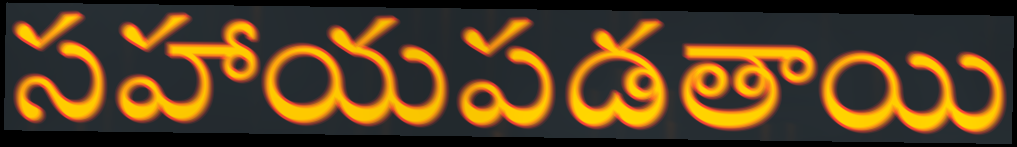
సహాయపడతాయి